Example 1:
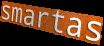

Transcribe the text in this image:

smartas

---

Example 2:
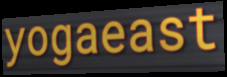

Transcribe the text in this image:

yogaeast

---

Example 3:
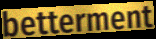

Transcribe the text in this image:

betterment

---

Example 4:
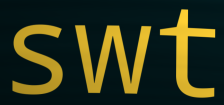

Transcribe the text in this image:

swt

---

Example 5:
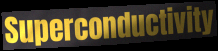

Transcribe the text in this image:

Superconductivity